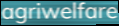
agriwelfare